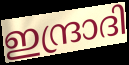
ഇന്ദ്രാദി